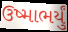
ઉષ્માભર્યું